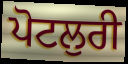
ਪੋਟਲੁਰੀ